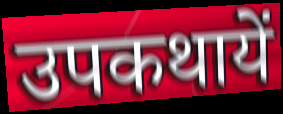
उपकथायें